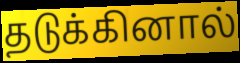
தடுக்கினால்